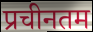
प्रचीनतम